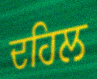
ਦਹਿਲ